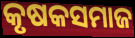
କୃଷକସମାଜ